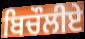
ਬਿਚੌਲੀਏ